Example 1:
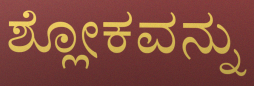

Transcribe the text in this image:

ಶ್ಲೋಕವನ್ನು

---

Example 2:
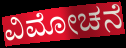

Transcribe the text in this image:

ವಿಮೋಚನೆ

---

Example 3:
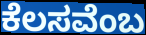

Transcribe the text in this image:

ಕೆಲಸವೆಂಬ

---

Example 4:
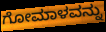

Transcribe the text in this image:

ಗೋಮಾಳವನ್ನು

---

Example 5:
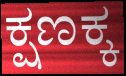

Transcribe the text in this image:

ಕ್ಷಣಕ್ಕ